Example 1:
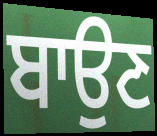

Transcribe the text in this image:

ਬਾਉਣ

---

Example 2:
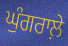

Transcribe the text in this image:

ਘੁੰਗਰਾਲ਼ੇ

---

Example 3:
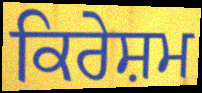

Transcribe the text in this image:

ਕਿਰੇਸ਼ਮ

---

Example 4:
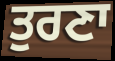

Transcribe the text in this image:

ਤੁਰਣਾ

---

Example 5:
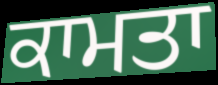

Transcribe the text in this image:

ਕਾਮਤਾ